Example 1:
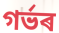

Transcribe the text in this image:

গৰ্ভৰ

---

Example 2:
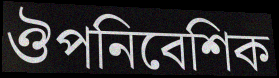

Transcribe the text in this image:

ঔপনিবেশিক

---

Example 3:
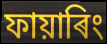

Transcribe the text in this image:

ফায়াৰিং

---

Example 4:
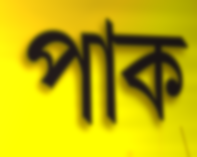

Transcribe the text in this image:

পাক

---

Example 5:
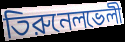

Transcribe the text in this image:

তিৰুনেলভেলী